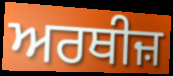
ਅਰਥੀਜ਼